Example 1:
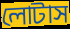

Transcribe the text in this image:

লোটাস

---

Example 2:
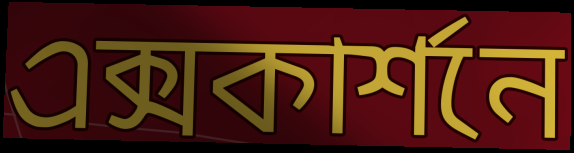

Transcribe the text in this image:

এক্সকার্শনে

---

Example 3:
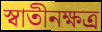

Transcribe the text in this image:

স্বাতীনক্ষত্র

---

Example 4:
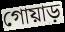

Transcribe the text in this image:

গোয়াড়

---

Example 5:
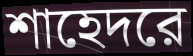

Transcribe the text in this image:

শাহেদরে